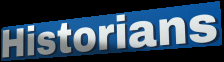
Historians